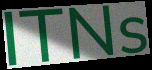
ITNs